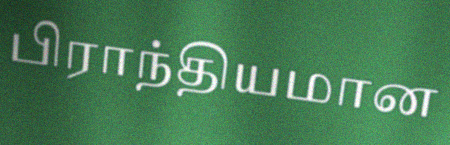
பிராந்தியமான